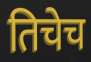
तिचेच